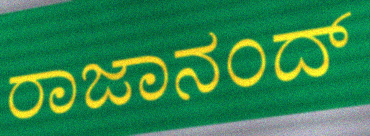
ರಾಜಾನಂದ್